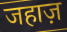
जहाज़